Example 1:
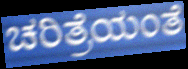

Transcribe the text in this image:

ಚರಿತ್ರೆಯಂತೆ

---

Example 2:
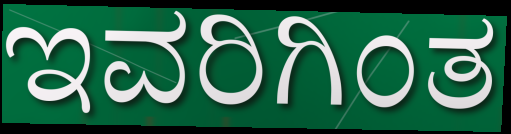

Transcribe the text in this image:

ಇವರಿಗಿಂತ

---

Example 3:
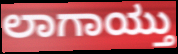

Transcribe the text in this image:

ಲಾಗಾಯ್ತು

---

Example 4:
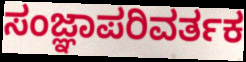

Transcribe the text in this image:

ಸಂಜ್ಞಾಪರಿವರ್ತಕ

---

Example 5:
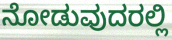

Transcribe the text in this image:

ನೋಡುವುದರಲ್ಲಿ